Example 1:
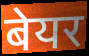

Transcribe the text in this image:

बेयर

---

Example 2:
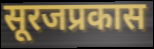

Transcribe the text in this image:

सूरजप्रकास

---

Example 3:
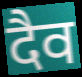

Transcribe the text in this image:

दैव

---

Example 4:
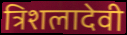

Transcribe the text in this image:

त्रिशलादेवी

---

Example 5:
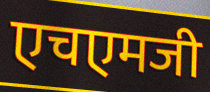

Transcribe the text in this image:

एचएमजी